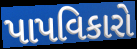
પાપવિકારો